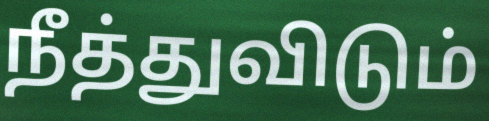
நீத்துவிடும்